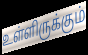
உள்ளிருக்கும்